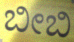
ಬೀಬಿ